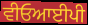
ਵੀਓਆਈਪੀ